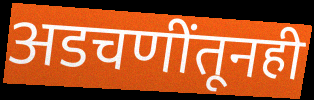
अडचणींतूनही